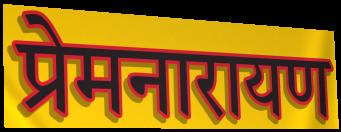
प्रेमनारायण